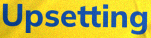
Upsetting